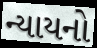
ન્યાયનો